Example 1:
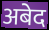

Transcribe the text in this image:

अबेद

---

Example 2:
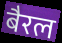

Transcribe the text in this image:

बैरल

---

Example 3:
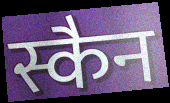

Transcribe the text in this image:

स्कैन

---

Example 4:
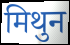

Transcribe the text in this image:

मिथुन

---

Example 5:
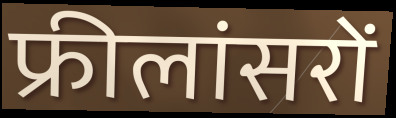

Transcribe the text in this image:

फ्रीलांसरों